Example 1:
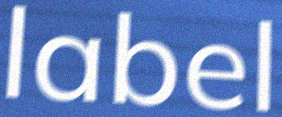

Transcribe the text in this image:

label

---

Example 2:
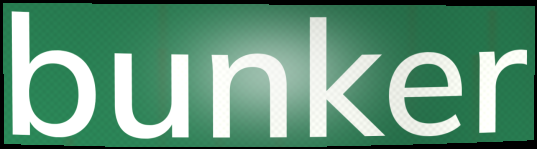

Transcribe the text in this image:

bunker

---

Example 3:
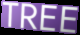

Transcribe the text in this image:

TREE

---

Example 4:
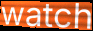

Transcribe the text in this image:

watch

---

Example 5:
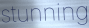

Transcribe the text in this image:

stunning